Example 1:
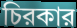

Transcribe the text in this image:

চিরকার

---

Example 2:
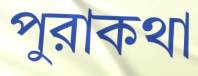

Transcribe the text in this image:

পুরাকথা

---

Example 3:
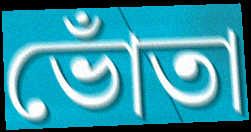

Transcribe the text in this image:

ভোঁতা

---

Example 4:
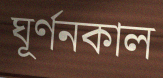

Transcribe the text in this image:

ঘূর্ণনকাল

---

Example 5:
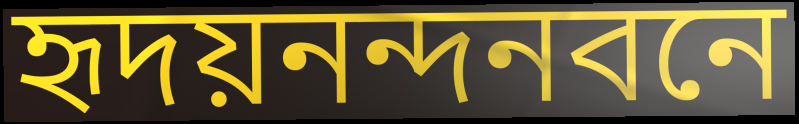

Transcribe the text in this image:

হৃদয়নন্দনবনে